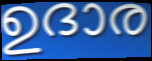
ഉദാര